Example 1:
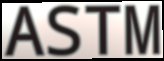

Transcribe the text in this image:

ASTM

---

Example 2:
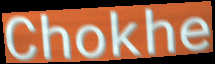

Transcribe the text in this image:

Chokhe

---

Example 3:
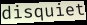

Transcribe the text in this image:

disquiet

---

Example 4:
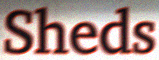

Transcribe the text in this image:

Sheds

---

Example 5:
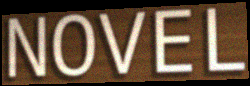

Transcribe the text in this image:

NOVEL